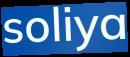
soliya